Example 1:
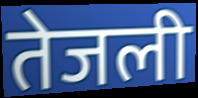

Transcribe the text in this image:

तेजली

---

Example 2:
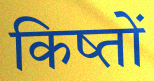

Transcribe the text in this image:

किष्तों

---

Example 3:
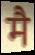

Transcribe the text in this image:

मै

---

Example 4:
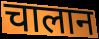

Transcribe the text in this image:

चालान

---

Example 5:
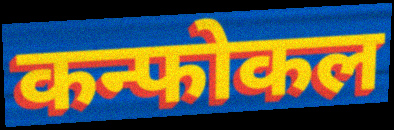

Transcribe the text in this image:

कन्फोकल